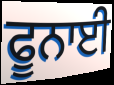
ਫੂਨਾਈ